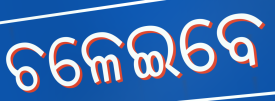
ଚଳେଇବେ